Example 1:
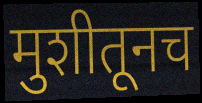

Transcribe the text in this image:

मुशीतूनच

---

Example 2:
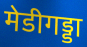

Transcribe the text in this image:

मेडीगड्डा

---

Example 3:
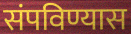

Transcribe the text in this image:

संपविण्यास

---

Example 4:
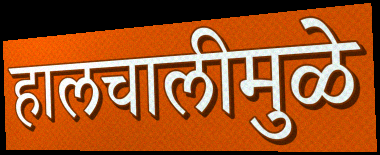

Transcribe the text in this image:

हालचालीमुळे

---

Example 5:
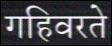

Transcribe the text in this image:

गहिवरते